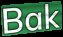
Bak